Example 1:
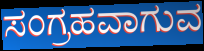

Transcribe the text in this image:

ಸಂಗ್ರಹವಾಗುವ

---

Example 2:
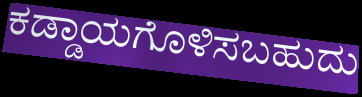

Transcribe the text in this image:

ಕಡ್ಡಾಯಗೊಳಿಸಬಹುದು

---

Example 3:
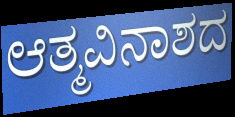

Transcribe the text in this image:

ಆತ್ಮವಿನಾಶದ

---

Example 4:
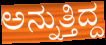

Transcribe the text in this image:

ಅನ್ನುತ್ತಿದ್ದ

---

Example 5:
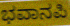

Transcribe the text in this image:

ಭವಾನಪಿ